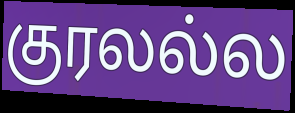
குரலல்ல